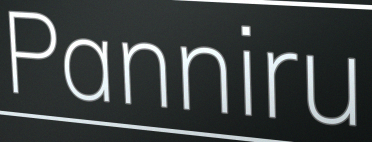
Panniru